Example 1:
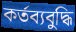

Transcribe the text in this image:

কর্তব্যবুদ্ধি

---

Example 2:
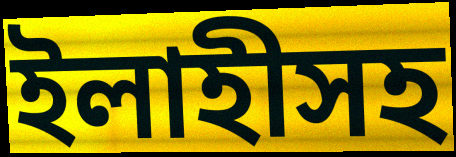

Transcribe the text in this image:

ইলাহীসহ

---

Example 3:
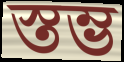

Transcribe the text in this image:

স্তম্ভ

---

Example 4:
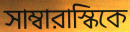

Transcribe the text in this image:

সাম্বারাস্কিকে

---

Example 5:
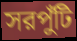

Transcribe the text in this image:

সরপুঁটি